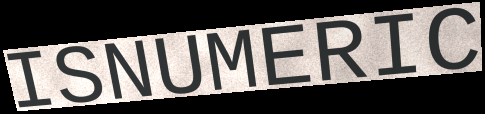
ISNUMERIC